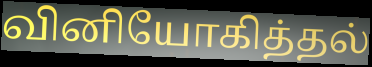
வினியோகித்தல்